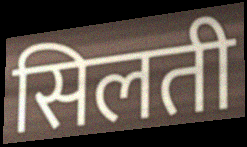
सिलती